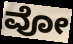
ವೋ